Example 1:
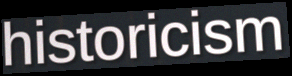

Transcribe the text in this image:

historicism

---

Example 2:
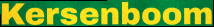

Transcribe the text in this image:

Kersenboom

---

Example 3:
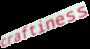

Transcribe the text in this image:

craftiness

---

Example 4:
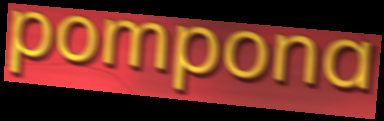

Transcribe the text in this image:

pompona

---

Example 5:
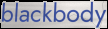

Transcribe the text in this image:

blackbody